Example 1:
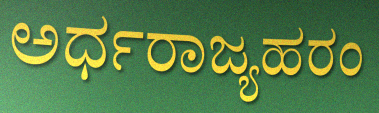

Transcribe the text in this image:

ಅರ್ಧರಾಜ್ಯಹರಂ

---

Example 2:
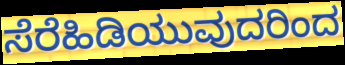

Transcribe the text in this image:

ಸೆರೆಹಿಡಿಯುವುದರಿಂದ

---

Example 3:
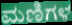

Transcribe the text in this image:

ಮಣಿಗಳ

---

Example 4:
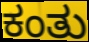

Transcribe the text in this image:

ಕಂತು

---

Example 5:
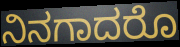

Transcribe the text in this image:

ನಿನಗಾದರೊ